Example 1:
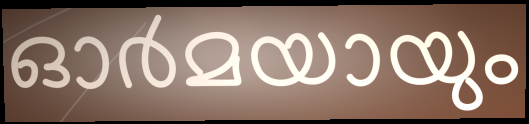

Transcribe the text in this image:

ഓർമയായും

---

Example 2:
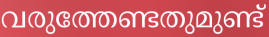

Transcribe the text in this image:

വരുത്തേണ്ടതുമുണ്ട്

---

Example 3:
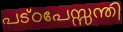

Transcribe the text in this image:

പട്ഠപേസ്സന്തി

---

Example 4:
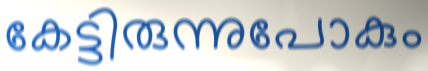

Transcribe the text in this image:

കേട്ടിരുന്നുപോകും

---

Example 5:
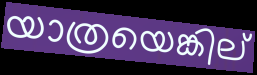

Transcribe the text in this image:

യാത്രയെങ്കില്